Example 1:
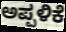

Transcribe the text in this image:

ಅಪ್ಪಳಿಕೆ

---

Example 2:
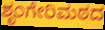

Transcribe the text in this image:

ಶೃಂಗೇರಿಮಠದ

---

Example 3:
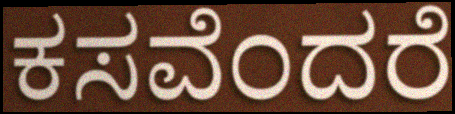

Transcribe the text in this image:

ಕಸವೆಂದರೆ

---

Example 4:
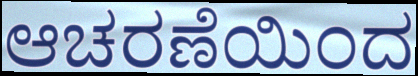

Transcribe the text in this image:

ಆಚರಣೆಯಿಂದ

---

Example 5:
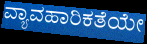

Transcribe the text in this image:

ವ್ಯಾವಹಾರಿಕತೆಯೇ